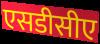
एसडीसीए